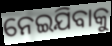
ନେଇଯିବାକୁ